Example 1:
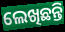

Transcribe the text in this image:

ଲେଖିଛନ୍ତି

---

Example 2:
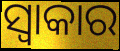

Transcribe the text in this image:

ସ୍ୱାକାର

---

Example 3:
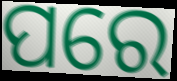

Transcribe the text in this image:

ପରେ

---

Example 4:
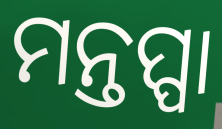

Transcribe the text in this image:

ମନ୍ତପ୍ପା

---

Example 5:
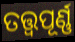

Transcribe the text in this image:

ତତ୍ତ୍ୱପୂର୍ଣ୍ଣ